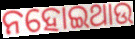
ନହୋଇଥାଉ